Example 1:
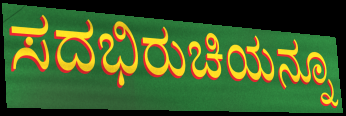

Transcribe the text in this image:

ಸದಭಿರುಚಿಯನ್ನೂ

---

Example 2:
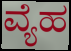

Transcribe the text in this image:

ವ್ಯೆಹ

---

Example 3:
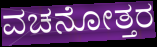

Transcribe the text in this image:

ವಚನೋತ್ತರ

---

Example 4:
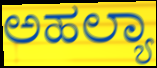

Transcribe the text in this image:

ಅಹಲ್ಯಾ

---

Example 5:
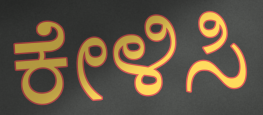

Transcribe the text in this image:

ಕೇಳಿಸಿ